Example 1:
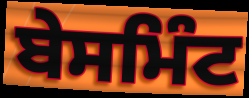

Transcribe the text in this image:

ਬੇਸਮਿੰਟ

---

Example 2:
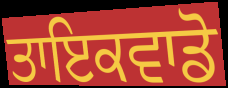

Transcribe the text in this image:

ਤਾਇਕਵਾਡੋ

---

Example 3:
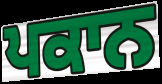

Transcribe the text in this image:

ਪਕਾਨ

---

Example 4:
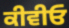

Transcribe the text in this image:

ਕੀਵੀਓ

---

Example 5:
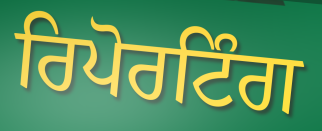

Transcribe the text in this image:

ਰਿਪੋਰਟਿੰਗ